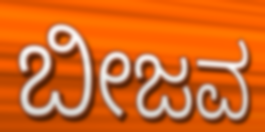
ಬೀಜವ